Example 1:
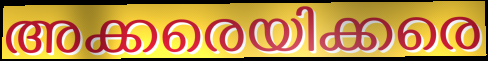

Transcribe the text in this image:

അക്കരെയിക്കരെ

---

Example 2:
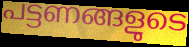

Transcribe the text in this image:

പട്ടണങ്ങളുടെ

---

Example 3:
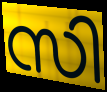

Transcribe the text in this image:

സി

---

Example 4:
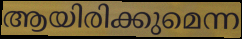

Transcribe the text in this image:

ആയിരിക്കുമെന്ന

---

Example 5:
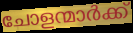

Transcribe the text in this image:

ചോളന്മാർക്ക്